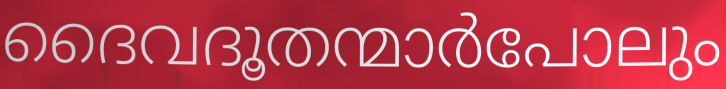
ദൈവദൂതന്മാർപോലും